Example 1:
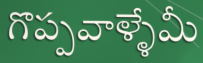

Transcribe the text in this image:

గొప్పవాళ్ళేమీ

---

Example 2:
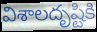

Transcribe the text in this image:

విశాలదృష్టికి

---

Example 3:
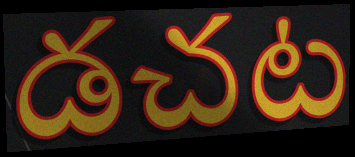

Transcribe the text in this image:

డచట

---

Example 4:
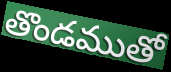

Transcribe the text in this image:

తొండముతో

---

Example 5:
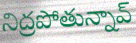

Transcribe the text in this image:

నిద్రపోతున్నావ్